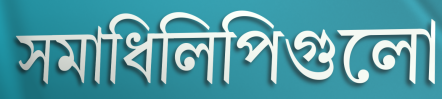
সমাধিলিপিগুলো